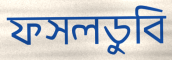
ফসলডুবি